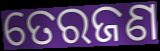
ତେରଜଣ